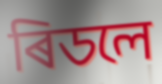
ৰিডলে